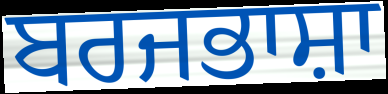
ਬਰਜਭਾਸ਼ਾ